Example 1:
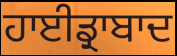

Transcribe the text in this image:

ਹਾਈਡ੍ਰਾਬਾਦ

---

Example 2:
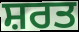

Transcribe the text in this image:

ਸ਼ਰਤ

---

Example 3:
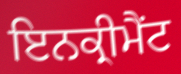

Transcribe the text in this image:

ਇਨਕ੍ਰੀਮੈਂਟ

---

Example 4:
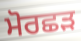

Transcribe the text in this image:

ਮੋਰਛੜ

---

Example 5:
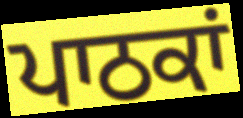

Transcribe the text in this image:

ਪਾਠਕਾਂ